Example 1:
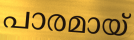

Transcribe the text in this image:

പാരമായ്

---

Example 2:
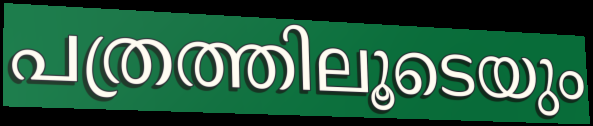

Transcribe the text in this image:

പത്രത്തിലൂടെയും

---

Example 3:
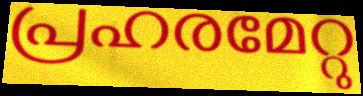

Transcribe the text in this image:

പ്രഹരമേറ്റു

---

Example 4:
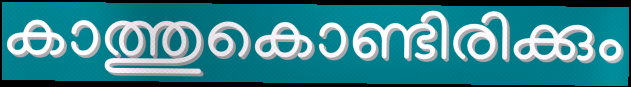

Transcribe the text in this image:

കാത്തുകൊണ്ടിരിക്കും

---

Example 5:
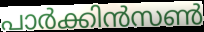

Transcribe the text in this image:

പാർക്കിൻസൺ